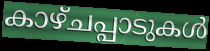
കാഴ്ചപ്പാടുകൾ